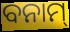
ବନାମ୍